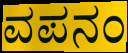
ವಪನಂ